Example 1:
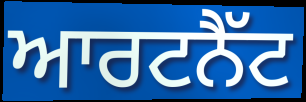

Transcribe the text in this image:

ਆਰਟਨੈੱਟ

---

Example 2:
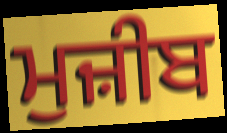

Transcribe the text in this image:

ਮੁਜ਼ੀਬ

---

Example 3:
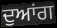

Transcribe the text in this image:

ਦੁਆਂਗ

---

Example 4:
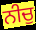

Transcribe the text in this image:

ਨੀਚੁ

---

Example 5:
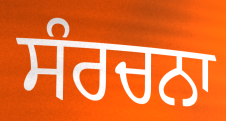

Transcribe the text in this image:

ਸੰਰਚਨਾ